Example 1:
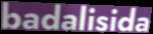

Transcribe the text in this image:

badalisida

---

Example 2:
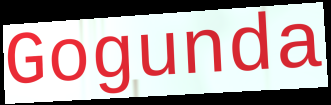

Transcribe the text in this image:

Gogunda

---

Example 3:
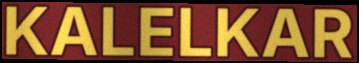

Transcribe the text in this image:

KALELKAR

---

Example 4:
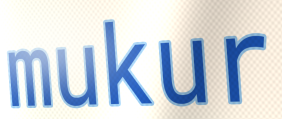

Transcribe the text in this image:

mukur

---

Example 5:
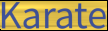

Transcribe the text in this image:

Karate